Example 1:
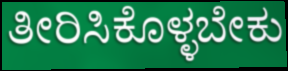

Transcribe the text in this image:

ತೀರಿಸಿಕೊಳ್ಳಬೇಕು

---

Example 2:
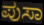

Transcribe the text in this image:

ಪುಸಾ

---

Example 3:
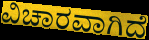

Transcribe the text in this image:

ವಿಚಾರವಾಗಿದೆ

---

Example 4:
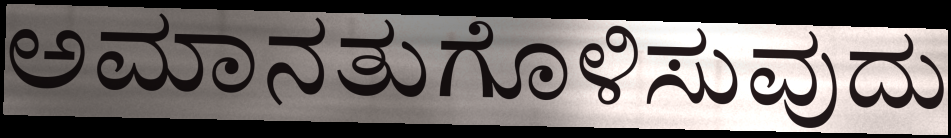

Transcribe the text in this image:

ಅಮಾನತುಗೊಳಿಸುವುದು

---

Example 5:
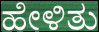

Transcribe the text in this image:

ಹೇಳಿತು